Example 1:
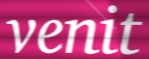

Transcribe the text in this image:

venit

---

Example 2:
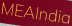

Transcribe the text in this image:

MEAIndia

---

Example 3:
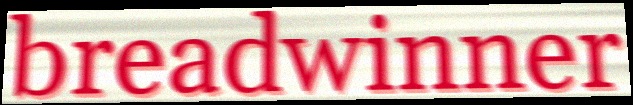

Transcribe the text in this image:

breadwinner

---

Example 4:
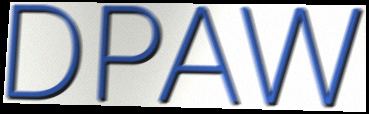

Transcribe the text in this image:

DPAW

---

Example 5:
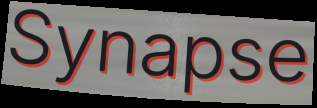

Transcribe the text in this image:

Synapse